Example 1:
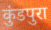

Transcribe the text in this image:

कुंडपुरा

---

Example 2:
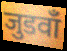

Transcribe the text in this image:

जुडवाँ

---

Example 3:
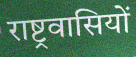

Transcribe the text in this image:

राष्ट्रवासियों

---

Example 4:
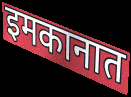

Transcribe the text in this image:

इमकानात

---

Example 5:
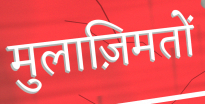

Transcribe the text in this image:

मुलाज़िमतों